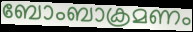
ബോംബാക്രമണം